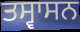
ਤਸ੍ਵਾਸਨ